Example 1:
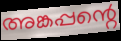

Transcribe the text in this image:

അങ്കപ്പന്റെ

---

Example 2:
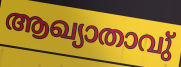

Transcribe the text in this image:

ആഖ്യാതാവു്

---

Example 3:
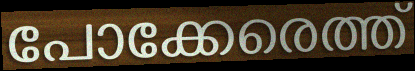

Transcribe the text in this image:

പോക്കേരെത്ത്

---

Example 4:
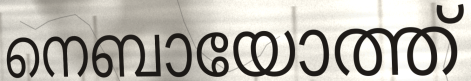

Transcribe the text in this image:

നെബായോത്ത്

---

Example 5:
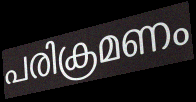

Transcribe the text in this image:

പരിക്രമണം